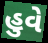
હુવે